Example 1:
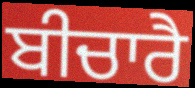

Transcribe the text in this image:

ਬੀਚਾਰੈ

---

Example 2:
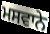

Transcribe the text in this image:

ਮਸਵਾਨੇ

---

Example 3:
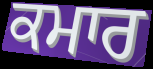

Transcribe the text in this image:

ਕਮਾਰ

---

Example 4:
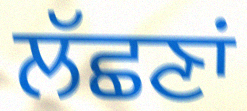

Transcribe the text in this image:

ਲੱਛਣਾਂ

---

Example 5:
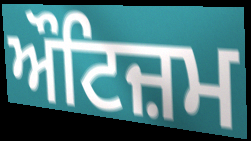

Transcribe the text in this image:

ਔਟਿਜ਼ਮ